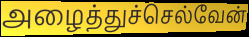
அழைத்துச்செல்வேன்